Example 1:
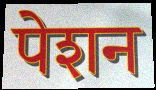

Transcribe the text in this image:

पेशन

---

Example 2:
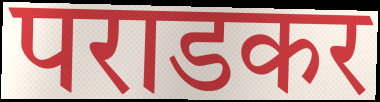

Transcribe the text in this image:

पराडकर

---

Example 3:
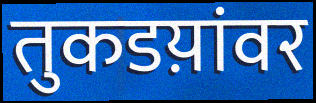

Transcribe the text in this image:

तुकडय़ांवर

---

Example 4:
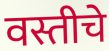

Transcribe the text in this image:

वस्तीचे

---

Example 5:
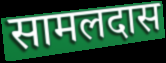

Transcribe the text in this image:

सामलदास